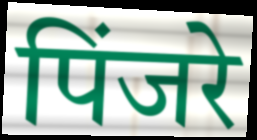
पिंजरे